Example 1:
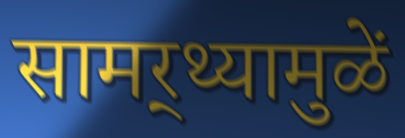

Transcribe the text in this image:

सामर्थ्यामुळें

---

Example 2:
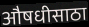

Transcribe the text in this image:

औषधीसाठा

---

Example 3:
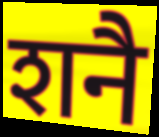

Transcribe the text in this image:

शनै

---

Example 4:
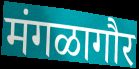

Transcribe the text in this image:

मंगळागौर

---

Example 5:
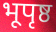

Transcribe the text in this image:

भूपृष्ठ